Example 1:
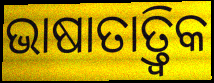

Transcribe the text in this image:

ଭାଷାତାତ୍ତ୍ୱିକ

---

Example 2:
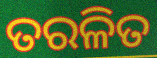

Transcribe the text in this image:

ତରଳିତ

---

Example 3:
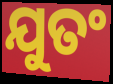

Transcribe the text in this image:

ଯୁତଂ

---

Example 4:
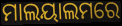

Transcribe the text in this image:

ମାଲୟାଲମରେ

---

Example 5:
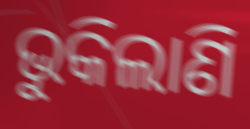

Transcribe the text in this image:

ଭୁକିଲାଣି